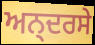
ਅਨ੍ਦਰਸੇ